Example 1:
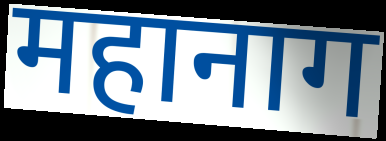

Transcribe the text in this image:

महानाग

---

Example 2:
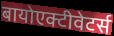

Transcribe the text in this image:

बायोएक्टीवेटर्स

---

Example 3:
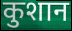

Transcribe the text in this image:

कुशान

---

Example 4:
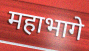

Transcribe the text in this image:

महाभागे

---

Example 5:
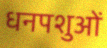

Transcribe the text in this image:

धनपशुओं